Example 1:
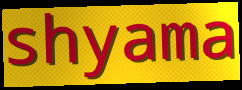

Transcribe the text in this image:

shyama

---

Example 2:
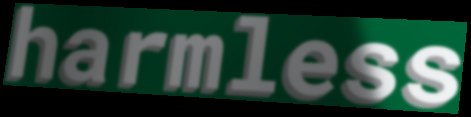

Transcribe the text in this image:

harmless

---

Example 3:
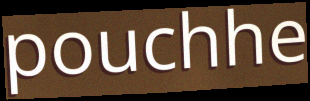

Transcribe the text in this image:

pouchhe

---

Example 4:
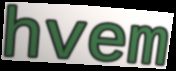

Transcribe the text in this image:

hvem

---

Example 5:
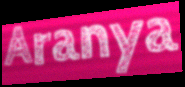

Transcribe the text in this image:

Aranya